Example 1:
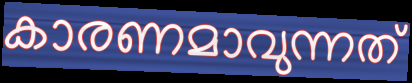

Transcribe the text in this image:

കാരണമാവുന്നത്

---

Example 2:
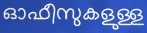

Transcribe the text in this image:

ഓഫീസുകളുള്ള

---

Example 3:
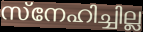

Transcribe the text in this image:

സ്‌നേഹിച്ചില്ല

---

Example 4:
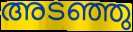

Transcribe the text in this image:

അടഞ്ഞു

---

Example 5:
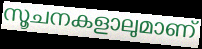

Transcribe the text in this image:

സൂചനകളാലുമാണ്